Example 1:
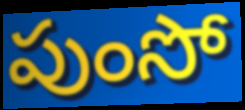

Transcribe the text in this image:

పుంసో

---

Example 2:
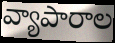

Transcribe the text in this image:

వ్యాపారాల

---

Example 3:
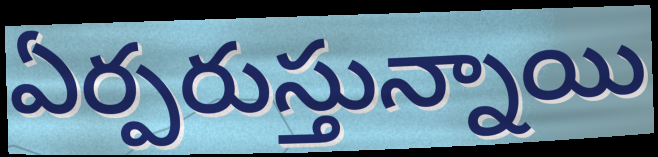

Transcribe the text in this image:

ఏర్పరుస్తున్నాయి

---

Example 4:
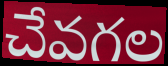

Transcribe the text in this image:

చేవగల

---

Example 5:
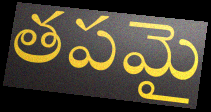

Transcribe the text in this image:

తపమై